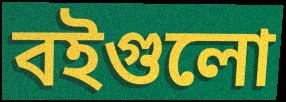
বইগুলো